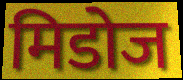
मिडोज